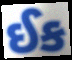
ઈક